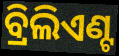
ବ୍ରିଲିଏଣ୍ଟ